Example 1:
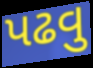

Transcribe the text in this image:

પઢવુ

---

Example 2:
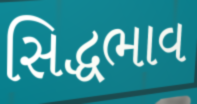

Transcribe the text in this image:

સિદ્ધભાવ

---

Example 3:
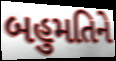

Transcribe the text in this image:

બહુમતિને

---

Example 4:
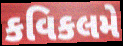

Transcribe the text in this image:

કવિકલમે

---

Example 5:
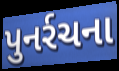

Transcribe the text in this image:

પુનર્રચના